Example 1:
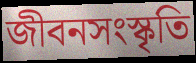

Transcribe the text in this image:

জীবনসংস্কৃতি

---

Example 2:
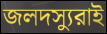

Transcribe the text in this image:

জলদস্যুরাই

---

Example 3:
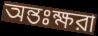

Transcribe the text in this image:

অন্তঃক্ষরা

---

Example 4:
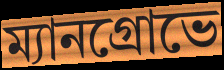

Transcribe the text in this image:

ম্যানগ্রোভে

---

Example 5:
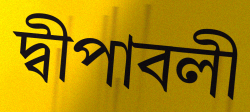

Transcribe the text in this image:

দ্বীপাবলী